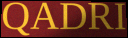
QADRI